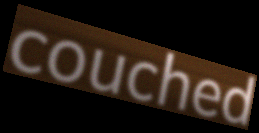
couched